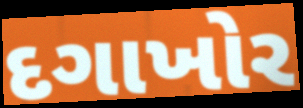
દગાખોર